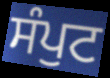
ਸੰਪੁਟ